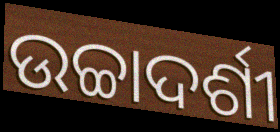
ଉଚ୍ଚାଦର୍ଶୀ